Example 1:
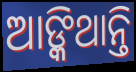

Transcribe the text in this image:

ଆଙ୍କିଥାନ୍ତି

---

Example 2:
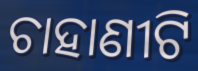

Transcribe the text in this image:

ଚାହାଣୀଟି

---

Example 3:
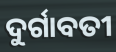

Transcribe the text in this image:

ଦୁର୍ଗାବତୀ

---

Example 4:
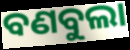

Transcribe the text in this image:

ବଣବୁଲା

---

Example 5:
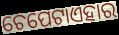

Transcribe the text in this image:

ଚେପେଟାଏହାର